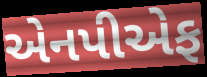
એનપીએફ